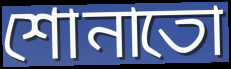
শোনাতো